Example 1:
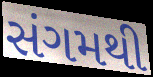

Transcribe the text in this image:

સંગમથી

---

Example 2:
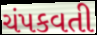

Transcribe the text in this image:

ચંપકવતી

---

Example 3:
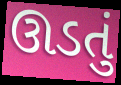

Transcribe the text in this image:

ઊડતું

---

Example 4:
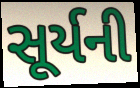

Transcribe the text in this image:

સૂર્યની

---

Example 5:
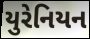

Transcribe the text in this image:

યુરેનિયન